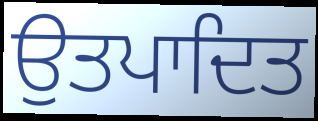
ਉਤਪਾਦਿਤ